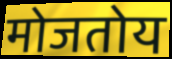
मोजतोय